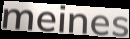
meines